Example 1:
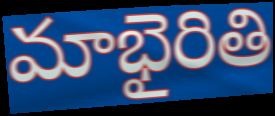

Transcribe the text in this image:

మాభైరితి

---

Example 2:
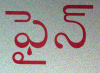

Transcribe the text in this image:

ఫైన్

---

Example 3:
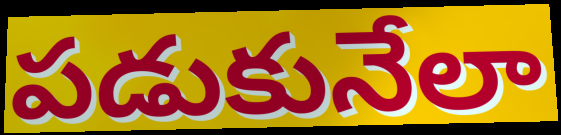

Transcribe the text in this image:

పడుకునేలా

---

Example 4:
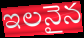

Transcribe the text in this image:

ఇలనైన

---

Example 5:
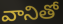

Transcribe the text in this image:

వానితో